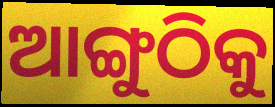
ଆଙ୍ଗୁଠିକୁ